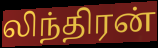
லிந்திரன்